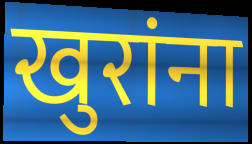
खुरांना